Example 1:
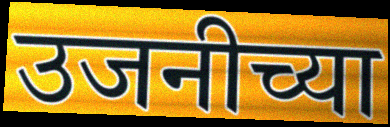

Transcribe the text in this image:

उजनीच्या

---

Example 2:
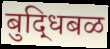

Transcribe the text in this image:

बुद्धिबळ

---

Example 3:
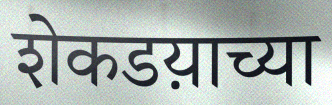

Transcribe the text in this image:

शेकडय़ाच्या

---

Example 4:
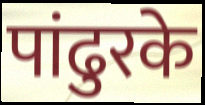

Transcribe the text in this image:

पांढुरके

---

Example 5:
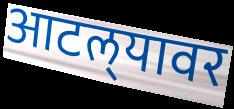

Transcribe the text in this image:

आटल्यावर